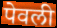
पेवली